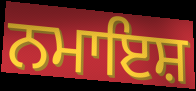
ਨਮਾਇਸ਼